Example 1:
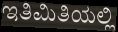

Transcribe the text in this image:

ಇತಿಮಿತಿಯಲ್ಲಿ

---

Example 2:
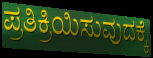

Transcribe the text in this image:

ಪ್ರತಿಕ್ರಿಯಿಸುವುದಕ್ಕೆ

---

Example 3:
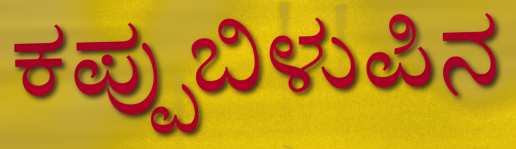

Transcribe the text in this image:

ಕಪ್ಪುಬಿಳುಪಿನ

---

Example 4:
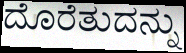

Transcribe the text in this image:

ದೊರೆತುದನ್ನು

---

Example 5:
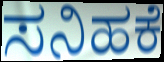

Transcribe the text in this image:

ಸನಿಹಕೆ